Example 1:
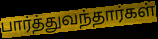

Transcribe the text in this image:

பார்த்துவந்தார்கள்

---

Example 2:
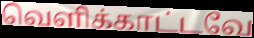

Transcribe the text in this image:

வெளிக்காட்டவே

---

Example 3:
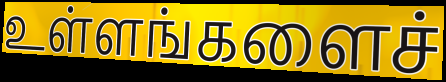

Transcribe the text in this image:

உள்ளங்களைச்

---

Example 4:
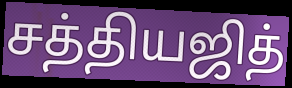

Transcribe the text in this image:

சத்தியஜித்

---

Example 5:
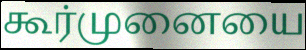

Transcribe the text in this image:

கூர்முனையை